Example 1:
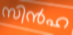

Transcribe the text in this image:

സിൻഹ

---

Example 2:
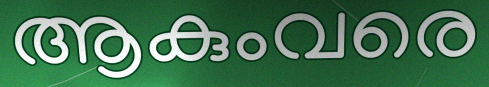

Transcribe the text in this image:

ആകുംവരെ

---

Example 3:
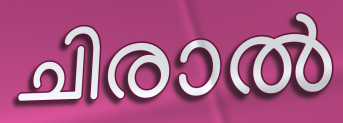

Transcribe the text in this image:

ചിരാൽ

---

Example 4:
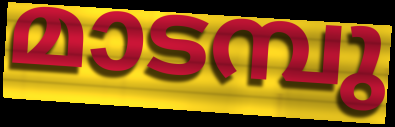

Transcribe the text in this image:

മാടമ്പു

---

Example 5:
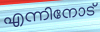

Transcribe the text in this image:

എന്നിനോട്